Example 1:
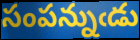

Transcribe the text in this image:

సంపన్నుఁడు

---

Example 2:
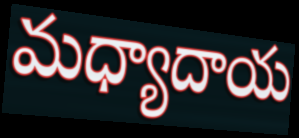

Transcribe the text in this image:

మధ్యాదాయ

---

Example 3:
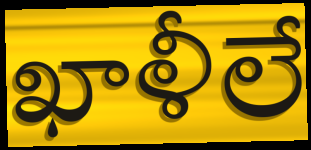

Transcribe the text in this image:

ఖాళీలే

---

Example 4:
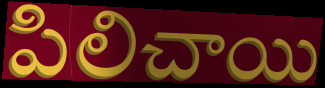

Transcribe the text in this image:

పిలిచాయి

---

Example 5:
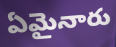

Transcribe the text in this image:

ఏమైనారు